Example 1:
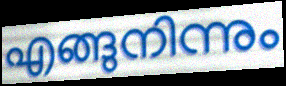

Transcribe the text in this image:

എങ്ങുനിന്നും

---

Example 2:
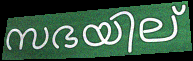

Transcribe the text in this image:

സഭയില്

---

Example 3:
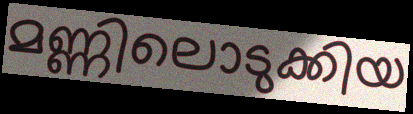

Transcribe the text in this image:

മണ്ണിലൊടുക്കിയ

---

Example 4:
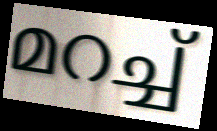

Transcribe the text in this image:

മറച്ച്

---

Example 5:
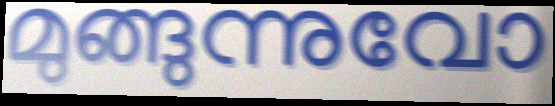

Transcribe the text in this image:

മുങ്ങുന്നുവോ